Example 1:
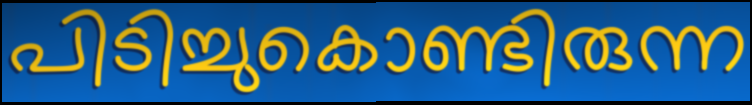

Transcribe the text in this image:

പിടിച്ചുകൊണ്ടിരുന്ന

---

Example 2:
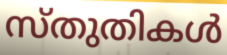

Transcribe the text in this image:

സ്തുതികൾ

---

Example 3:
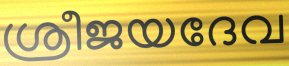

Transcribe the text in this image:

ശ്രീജയദേവ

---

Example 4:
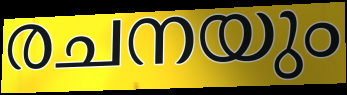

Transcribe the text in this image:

രചനയും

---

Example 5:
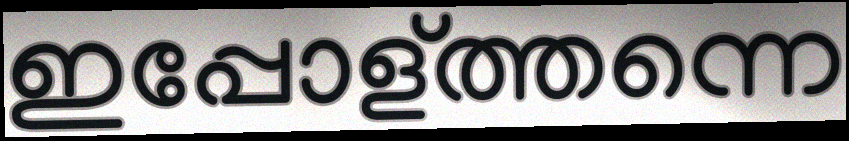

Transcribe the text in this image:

ഇപ്പോള്ത്തന്നെ